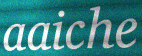
aaiche